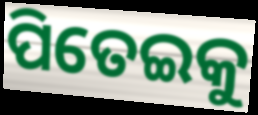
ପିତେଇକୁ